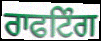
ਰਾਫਟਿੰਗ